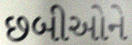
છબીઓને